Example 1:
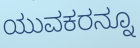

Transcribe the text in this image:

ಯುವಕರನ್ನೂ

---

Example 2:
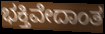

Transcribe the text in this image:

ಭಕ್ತಿವೇದಾಂತ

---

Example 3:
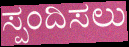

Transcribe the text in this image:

ಸ್ಪಂದಿಸಲು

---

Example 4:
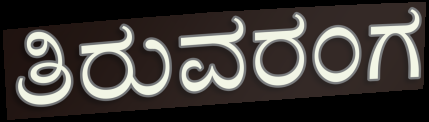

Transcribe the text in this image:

ತಿರುವರಂಗ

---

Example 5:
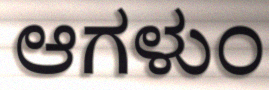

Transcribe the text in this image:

ಆಗಳುಂ